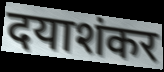
दयाशंकर